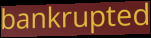
bankrupted